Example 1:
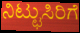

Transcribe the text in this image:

ನಿಟ್ಟುಸಿರಿಗೆ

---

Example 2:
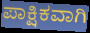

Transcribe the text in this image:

ಪಾಕ್ಷಿಕವಾಗಿ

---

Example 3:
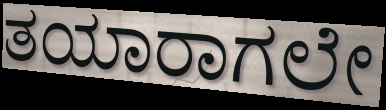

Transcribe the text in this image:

ತಯಾರಾಗಲೇ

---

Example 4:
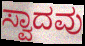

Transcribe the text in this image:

ಸ್ವಾದವು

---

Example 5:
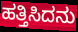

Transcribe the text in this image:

ಹತ್ತಿಸಿದನು